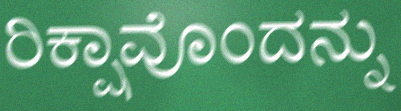
ರಿಕ್ಷಾವೊಂದನ್ನು